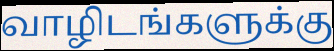
வாழிடங்களுக்கு